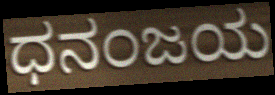
ಧನಂಜಯ